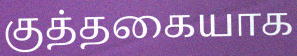
குத்தகையாக